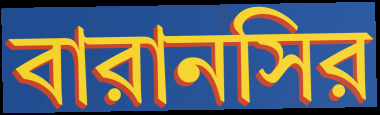
বারানসির